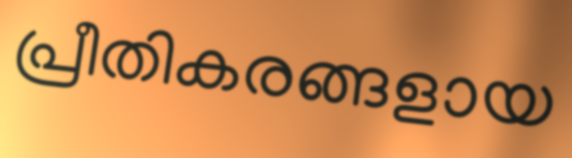
പ്രീതികരങ്ങളായ